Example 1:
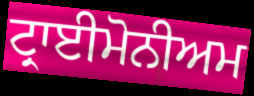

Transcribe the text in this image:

ਟ੍ਰਾਈਮੋਨੀਅਮ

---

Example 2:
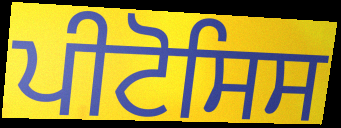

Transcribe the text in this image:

ਪੀਟੋਸਿਸ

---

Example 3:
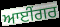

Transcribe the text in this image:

ਆਈਂਗਰ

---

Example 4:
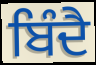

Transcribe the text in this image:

ਬਿੰਦੈ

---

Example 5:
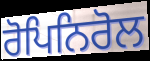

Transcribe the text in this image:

ਰੋਪਿਨਿਰੋਲ